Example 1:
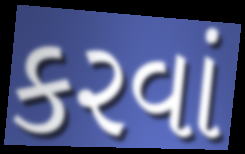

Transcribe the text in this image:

કરવાં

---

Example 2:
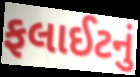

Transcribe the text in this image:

ફલાઈટનું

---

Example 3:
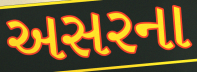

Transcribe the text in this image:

અસરના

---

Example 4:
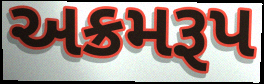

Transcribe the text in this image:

અક્રમરૂપ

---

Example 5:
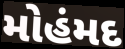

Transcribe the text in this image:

મોહંમદ